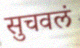
सुचवलं